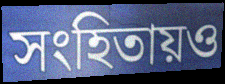
সংহিতায়ও